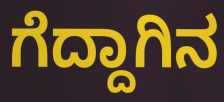
ಗೆದ್ದಾಗಿನ